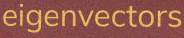
eigenvectors